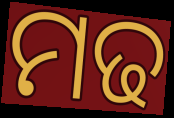
ମଢ